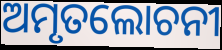
ଅମୃତଲୋଚନୀ